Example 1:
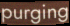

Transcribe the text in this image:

purging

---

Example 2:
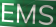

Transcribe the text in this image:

EMS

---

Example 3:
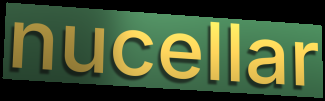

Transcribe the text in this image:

nucellar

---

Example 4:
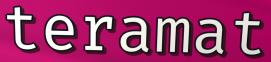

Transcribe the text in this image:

teramat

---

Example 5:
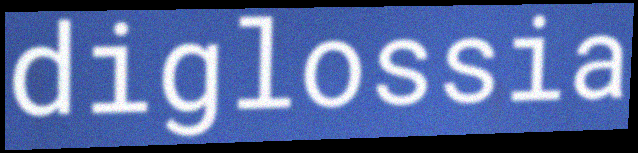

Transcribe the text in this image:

diglossia